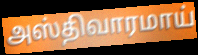
அஸ்திவாரமாய்